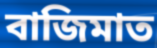
বাজিমাত